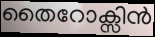
തൈറോക്സിൻ